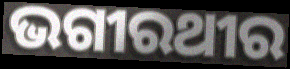
ଭଗୀରଥୀର